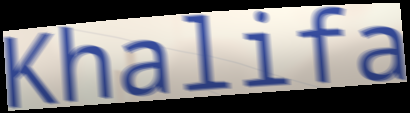
Khalifa